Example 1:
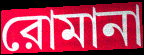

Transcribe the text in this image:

রোমানা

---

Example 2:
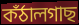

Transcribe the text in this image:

কঁঠালগাছ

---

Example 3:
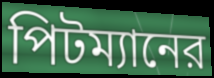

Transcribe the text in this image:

পিটম্যানের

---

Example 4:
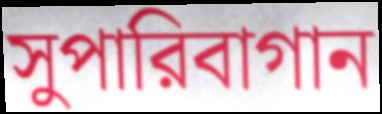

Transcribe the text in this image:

সুপারিবাগান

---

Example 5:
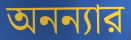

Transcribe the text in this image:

অনন্যার